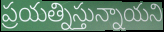
ప్రయత్నిస్తున్నాయని